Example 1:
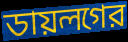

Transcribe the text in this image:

ডায়লগের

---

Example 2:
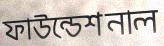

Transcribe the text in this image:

ফাউন্ডেশনাল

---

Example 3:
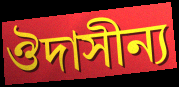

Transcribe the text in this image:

ঔদাসীন্য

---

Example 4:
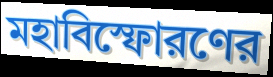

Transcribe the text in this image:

মহাবিস্ফোরণের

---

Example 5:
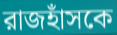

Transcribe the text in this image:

রাজহাঁসকে